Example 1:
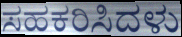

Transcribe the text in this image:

ಸಹಕರಿಸಿದಳು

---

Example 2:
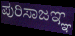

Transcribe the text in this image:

ಪುರಿಸಾಜಞ್ಞ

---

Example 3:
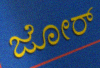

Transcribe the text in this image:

ಜೋರ್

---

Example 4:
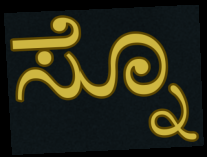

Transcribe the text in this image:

ಸ್ನೊ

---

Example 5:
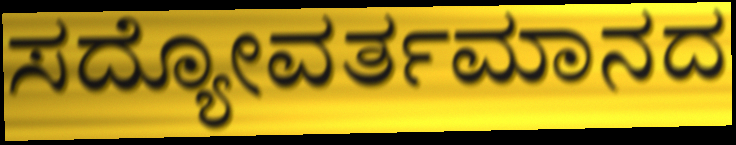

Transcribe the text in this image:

ಸದ್ಯೋವರ್ತಮಾನದ